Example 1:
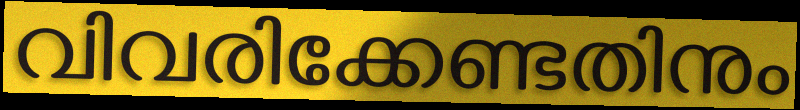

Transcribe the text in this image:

വിവരിക്കേണ്ടതിനും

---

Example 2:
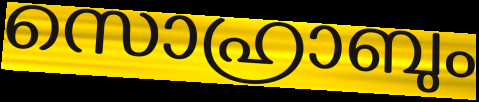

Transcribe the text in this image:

സൊഹ്രാബും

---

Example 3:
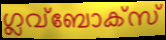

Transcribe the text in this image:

ഗ്ലവ്ബോക്സ്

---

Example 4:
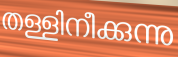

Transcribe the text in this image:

തള്ളിനീക്കുന്നു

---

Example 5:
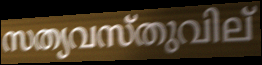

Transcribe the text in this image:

സത്യവസ്തുവില്